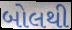
બોલથી